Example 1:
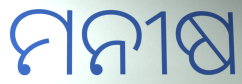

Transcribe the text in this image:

ମନୀଷ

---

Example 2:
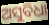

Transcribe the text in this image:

ଅସୁବିଧା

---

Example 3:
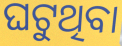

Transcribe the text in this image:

ଘଟୁଥିବା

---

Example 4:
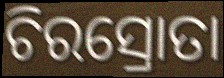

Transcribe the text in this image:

ଚିରସ୍ରୋତା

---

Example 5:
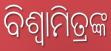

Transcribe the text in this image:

ବିଶ୍ଵାମିତ୍ରଙ୍କ